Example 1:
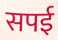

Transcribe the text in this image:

सपई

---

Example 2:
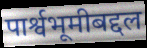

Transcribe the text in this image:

पार्श्वभूमीबद्दल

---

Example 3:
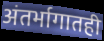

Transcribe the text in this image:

अंतर्भागातही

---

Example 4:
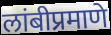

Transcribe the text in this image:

लांबीप्रमाणे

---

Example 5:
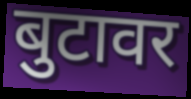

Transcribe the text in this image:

बुटावर